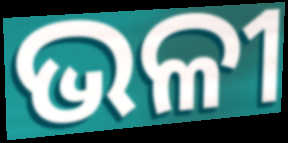
ଭଳୀ